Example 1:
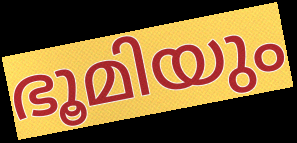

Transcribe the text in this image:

ഭൂമിയും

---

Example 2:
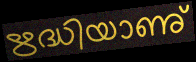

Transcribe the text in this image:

ഋദ്ധിയാണു്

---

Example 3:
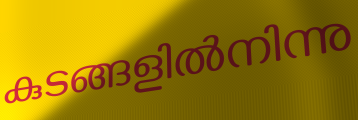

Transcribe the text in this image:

കുടങ്ങളിൽനിന്നു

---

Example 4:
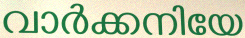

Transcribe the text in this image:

വാർക്കനിയേ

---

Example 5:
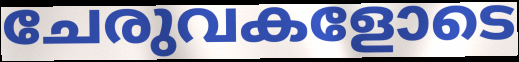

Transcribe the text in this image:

ചേരുവകളോടെ